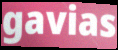
gavias